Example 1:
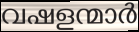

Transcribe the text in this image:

വഷളന്മാർ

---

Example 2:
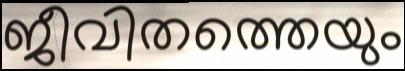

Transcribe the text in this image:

ജീവിതത്തെയും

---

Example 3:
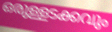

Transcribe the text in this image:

ഒരുള്ളടക്കവും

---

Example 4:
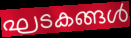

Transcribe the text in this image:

ഘടകങ്ങൾ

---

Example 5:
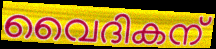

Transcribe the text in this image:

വൈദികന്